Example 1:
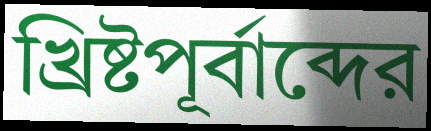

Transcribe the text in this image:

খ্রিষ্টপূর্বাব্দের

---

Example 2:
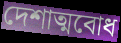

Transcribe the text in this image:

দেশাত্মবোধ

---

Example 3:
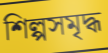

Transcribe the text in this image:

শিল্পসমৃদ্ধ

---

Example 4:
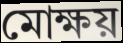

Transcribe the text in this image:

মোক্ষয়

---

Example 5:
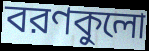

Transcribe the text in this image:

বরণকুলো